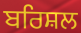
ਬਰਿਸ਼ਲ